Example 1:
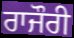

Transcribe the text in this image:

ਰਾਜੌਰੀ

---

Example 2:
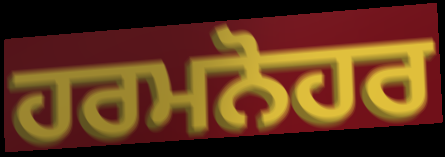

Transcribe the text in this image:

ਹਰਮਨੋਹਰ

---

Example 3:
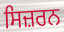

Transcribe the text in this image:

ਸਿਜ਼ਰਨ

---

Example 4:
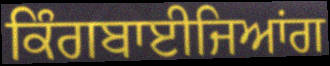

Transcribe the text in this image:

ਕਿੰਗਬਾਈਜਿਆਂਗ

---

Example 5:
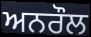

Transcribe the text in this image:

ਅਨਰੌਲ